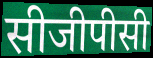
सीजीपीसी